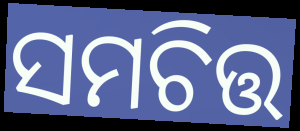
ସମଚିତ୍ତ